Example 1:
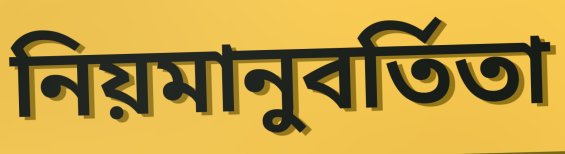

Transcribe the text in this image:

নিয়মানুবর্তিতা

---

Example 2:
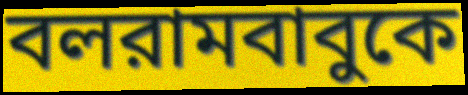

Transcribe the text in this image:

বলরামবাবুকে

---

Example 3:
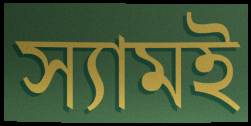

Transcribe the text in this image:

স্যামই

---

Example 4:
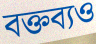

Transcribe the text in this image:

বক্তব্যও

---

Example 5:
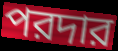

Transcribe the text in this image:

পরদার